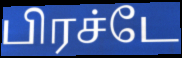
பிரச்டே